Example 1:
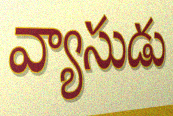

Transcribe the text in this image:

వ్యాసుడు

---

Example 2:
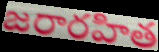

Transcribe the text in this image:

జరారహిత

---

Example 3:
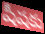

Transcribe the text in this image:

షీషకు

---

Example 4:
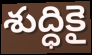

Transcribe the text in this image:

శుద్ధికై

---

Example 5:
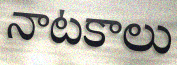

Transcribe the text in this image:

నాటకాలు